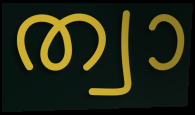
ത്വാ